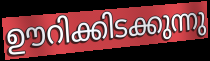
ഊറിക്കിടക്കുന്നു